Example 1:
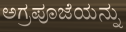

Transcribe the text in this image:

ಅಗ್ರಪೂಜೆಯನ್ನು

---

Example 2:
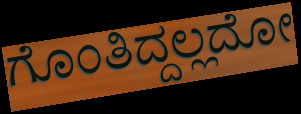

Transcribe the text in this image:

ಗೊಂತಿದ್ದಲ್ಲದೋ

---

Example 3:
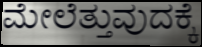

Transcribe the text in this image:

ಮೇಲೆತ್ತುವುದಕ್ಕೆ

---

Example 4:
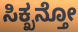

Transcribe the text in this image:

ಸಿಕ್ಖನ್ತೋ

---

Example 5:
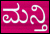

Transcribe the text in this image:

ಮನ್ತಿ